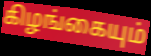
கிழங்கையும்